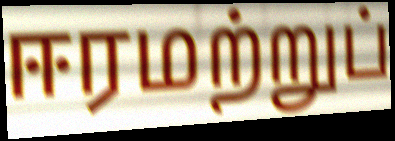
ஈரமற்றுப்